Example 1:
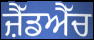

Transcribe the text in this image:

ਜ਼ੈੱਡਐੱਚ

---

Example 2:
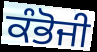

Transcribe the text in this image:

ਕੰਭੋਜੀ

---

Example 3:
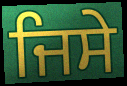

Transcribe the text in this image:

ਜਿਸੇ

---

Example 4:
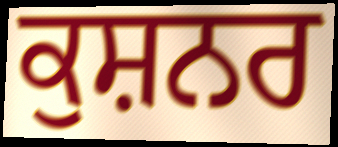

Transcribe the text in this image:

ਕੁਸ਼ਨਰ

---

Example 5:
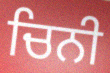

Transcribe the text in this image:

ਚਿਨੀ